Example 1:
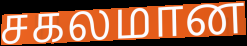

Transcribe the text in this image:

சகலமான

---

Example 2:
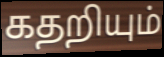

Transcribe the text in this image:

கதறியும்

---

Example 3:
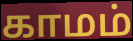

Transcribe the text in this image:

காமம்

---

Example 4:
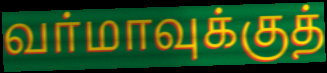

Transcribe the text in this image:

வர்மாவுக்குத்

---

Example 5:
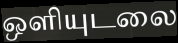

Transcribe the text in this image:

ஒளியுடலை